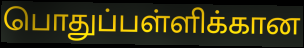
பொதுப்பள்ளிக்கான